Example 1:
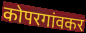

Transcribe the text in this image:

कोपरगांवकर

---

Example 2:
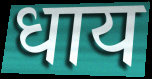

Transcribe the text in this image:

धाय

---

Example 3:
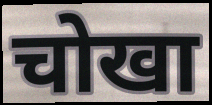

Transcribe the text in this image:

चोखा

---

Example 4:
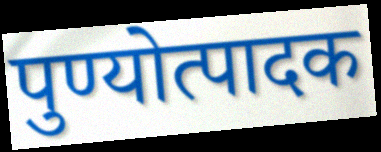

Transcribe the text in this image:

पुण्योत्पादक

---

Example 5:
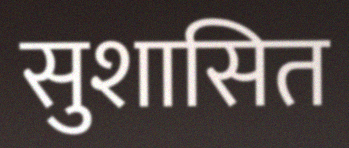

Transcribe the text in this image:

सुशासित